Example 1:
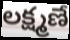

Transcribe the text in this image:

లక్ష్మణే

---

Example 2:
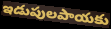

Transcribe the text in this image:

ఇడుపులపాయకు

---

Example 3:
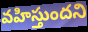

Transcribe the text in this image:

వహిస్తుందని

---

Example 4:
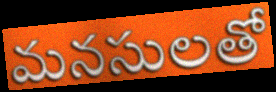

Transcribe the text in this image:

మనసులతో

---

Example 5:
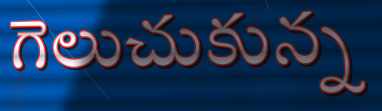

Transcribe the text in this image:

గెలుచుకున్న